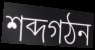
শব্দগঠন